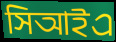
সিআইএ